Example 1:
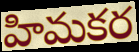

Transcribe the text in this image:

హిమకర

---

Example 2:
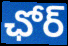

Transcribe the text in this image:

ఛోర్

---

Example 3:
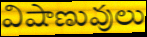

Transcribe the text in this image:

విషాణువులు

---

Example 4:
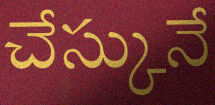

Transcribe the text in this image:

చేస్కునే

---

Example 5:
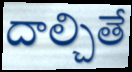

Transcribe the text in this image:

దాల్చితే